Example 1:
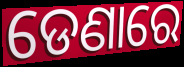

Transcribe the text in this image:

ଡେଣାରେ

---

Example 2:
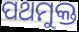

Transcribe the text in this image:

ପଥମୁକ୍ତ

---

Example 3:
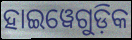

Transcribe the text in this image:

ହାଇୱେଗୁଡ଼ିକ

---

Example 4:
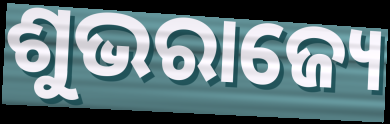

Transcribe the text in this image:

ଶୁଭରାଜ୍ୟେ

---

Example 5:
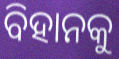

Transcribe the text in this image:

ବିହାନକୁ